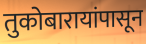
तुकोबारायांपासून